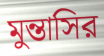
মুন্তাসির